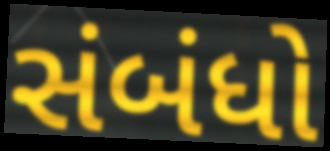
સંબંધો